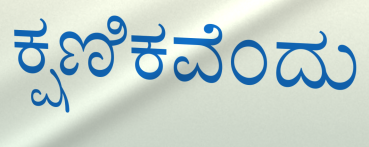
ಕ್ಷಣಿಕವೆಂದು